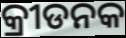
କ୍ରୀଡନକ